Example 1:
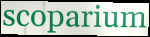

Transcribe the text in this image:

scoparium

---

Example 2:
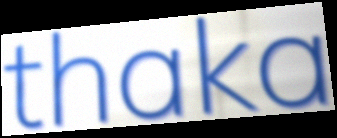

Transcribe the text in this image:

thaka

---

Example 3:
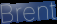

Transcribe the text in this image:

Brent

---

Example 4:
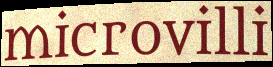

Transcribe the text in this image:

microvilli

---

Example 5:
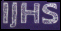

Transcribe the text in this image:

IJHS